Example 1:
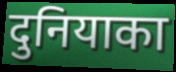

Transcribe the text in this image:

दुनियाका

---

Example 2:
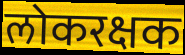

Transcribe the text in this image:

लोकरक्षक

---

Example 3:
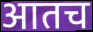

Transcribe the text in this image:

आतच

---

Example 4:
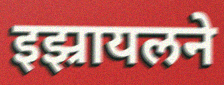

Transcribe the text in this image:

इझ्रायलने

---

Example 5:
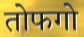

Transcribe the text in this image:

तोफगो